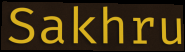
Sakhru